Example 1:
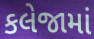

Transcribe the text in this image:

કલેજામાં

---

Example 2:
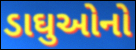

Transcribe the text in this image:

ડાઘુઓનો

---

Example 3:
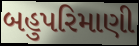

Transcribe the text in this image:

બહુપરિમાણી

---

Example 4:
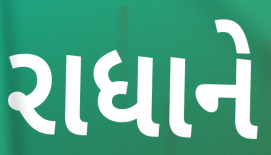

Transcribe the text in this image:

રાધાને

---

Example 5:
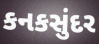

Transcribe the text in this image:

કનકસુંદર